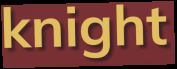
knight